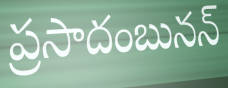
ప్రసాదంబునన్